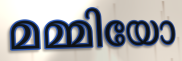
മമ്മിയോ